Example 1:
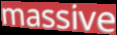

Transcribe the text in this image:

massive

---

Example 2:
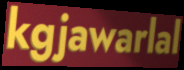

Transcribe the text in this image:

kgjawarlal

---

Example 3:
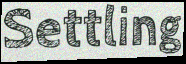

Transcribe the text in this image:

Settling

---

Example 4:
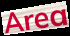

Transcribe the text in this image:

Area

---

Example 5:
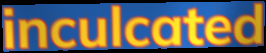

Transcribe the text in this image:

inculcated